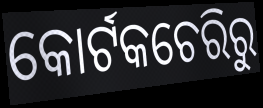
କୋର୍ଟକଚେରିରୁ